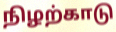
நிழற்காடு